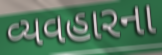
વ્યવહારના